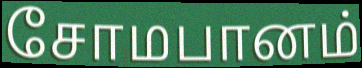
சோமபானம்